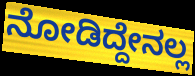
ನೋಡಿದ್ದೇನಲ್ಲ